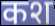
कश